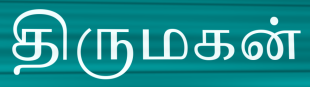
திருமகன்